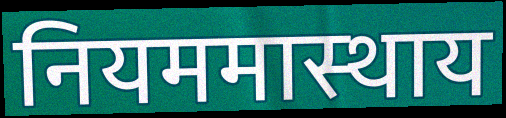
नियममास्थाय